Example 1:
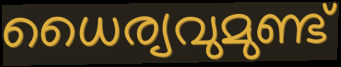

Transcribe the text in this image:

ധൈര്യവുമുണ്ട്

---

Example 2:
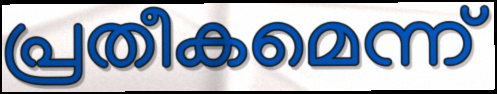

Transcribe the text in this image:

പ്രതീകമെന്ന്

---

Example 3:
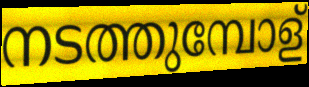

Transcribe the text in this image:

നടത്തുമ്പോള്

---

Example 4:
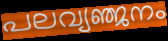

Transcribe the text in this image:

പലവ്യഞ്ജനം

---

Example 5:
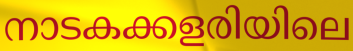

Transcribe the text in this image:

നാടകക്കളരിയിലെ